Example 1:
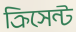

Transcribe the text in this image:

ক্রিসেন্ট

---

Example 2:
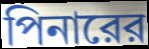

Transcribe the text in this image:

পিনারের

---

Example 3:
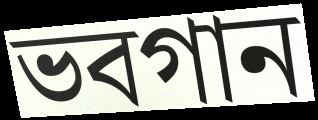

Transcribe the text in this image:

ভবগান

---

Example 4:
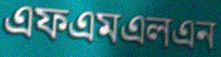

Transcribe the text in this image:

এফএমএলএন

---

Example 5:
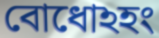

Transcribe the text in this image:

বোধোঽহং